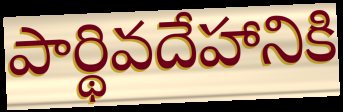
పార్థివదేహానికి